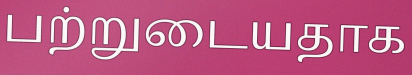
பற்றுடையதாக